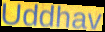
Uddhav